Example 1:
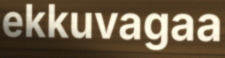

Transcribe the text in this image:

ekkuvagaa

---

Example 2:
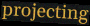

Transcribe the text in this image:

projecting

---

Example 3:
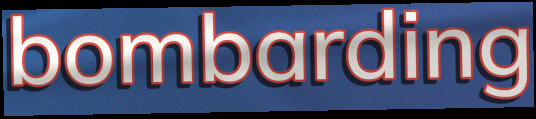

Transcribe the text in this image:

bombarding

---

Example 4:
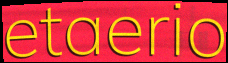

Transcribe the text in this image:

etaerio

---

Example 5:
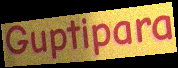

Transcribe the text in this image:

Guptipara